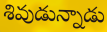
శివుడున్నాడు